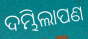
ଦମ୍ଭିଲାପଣ